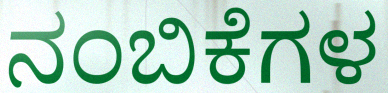
ನಂಬಿಕೆಗಳ